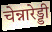
चेन्नारेड्डी